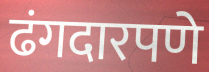
ढंगदारपणे